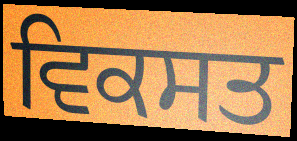
ਵਿਕਸਤ